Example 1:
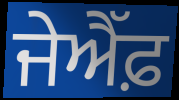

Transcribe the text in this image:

ਜੇਐੱਫ਼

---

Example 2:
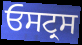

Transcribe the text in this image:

ਓਸਟ੍ਰਸ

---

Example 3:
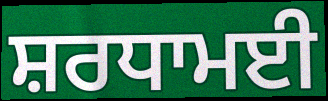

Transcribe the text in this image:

ਸ਼ਰਧਾਮਈ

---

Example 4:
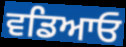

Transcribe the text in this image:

ਵਡਿਆਓ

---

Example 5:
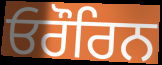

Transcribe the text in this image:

ਓਰੌਰਿਨ